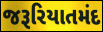
જરૂરિયાતમંદ